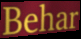
Behar